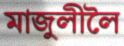
মাজুলীলৈ